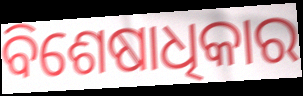
ବିଶେଷାଧିକାର